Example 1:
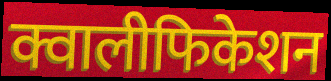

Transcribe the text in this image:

क्वालीफिकेशन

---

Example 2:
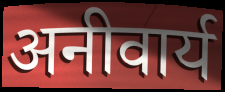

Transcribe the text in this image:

अनीवार्य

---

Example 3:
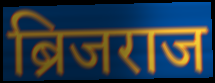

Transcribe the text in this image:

ब्रिजराज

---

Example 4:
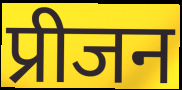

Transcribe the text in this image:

प्रीजन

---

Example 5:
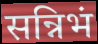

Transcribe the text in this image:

सन्निभं